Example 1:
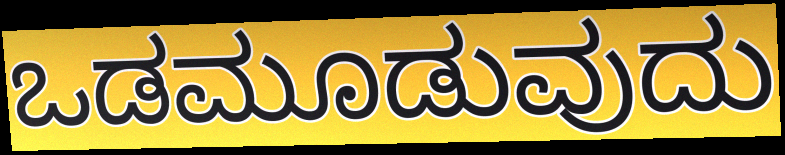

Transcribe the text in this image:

ಒಡಮೂಡುವುದು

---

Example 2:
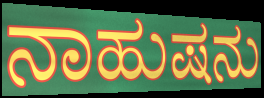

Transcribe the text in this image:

ನಾಹುಷನು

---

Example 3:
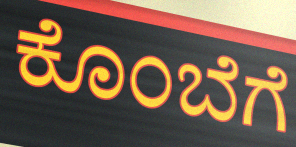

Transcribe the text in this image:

ಕೊಂಬೆಗೆ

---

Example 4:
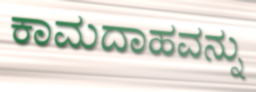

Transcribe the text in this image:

ಕಾಮದಾಹವನ್ನು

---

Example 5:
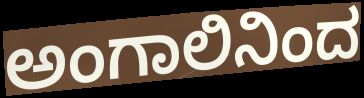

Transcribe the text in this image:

ಅಂಗಾಲಿನಿಂದ